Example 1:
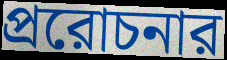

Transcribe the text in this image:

প্ররোচনার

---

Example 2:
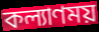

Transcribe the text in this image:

কল্যাণময়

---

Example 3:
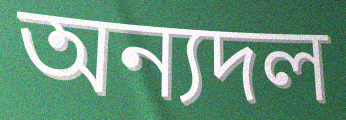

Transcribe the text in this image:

অন্যদল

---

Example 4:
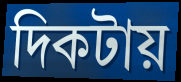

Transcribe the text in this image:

দিকটায়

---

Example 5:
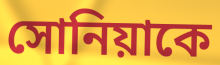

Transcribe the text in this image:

সোনিয়াকে